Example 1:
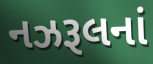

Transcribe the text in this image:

નઝરૂલનાં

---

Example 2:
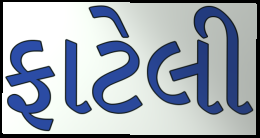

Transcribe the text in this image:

ફાટેલી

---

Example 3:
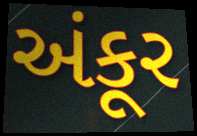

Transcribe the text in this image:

અંકૂર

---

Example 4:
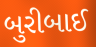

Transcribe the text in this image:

બુરીબાઈ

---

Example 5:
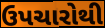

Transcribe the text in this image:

ઉપચારોથી